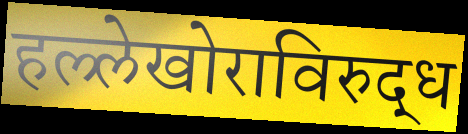
हल्लेखोराविरुद्ध